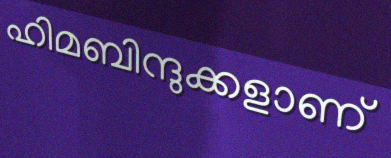
ഹിമബിന്ദുക്കളാണ്